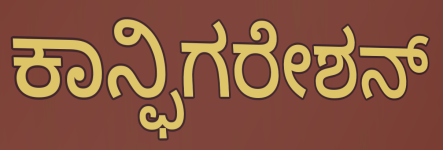
ಕಾನ್ಫಿಗರೇಶನ್